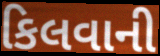
કિલવાની